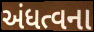
અંધત્વના